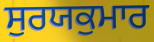
ਸੁਰਯਕੁਮਾਰ